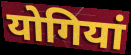
योगियां